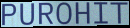
PUROHIT